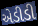
એડીડી